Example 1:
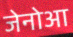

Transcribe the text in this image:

जेनोआ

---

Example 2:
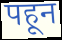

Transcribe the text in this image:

पहून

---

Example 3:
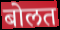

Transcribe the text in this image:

बोलत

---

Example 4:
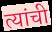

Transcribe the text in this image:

त्यांची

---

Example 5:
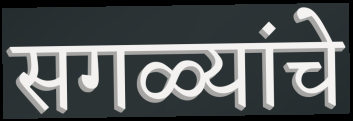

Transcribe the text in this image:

सगळ्यांचे